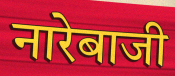
नारेबाजी